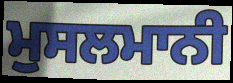
ਮੁਸਲਮਾਨੀ